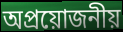
অপ্ৰয়োজনীয়